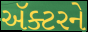
ઍક્ટરને